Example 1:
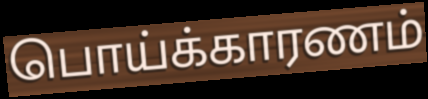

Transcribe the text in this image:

பொய்க்காரணம்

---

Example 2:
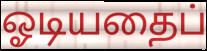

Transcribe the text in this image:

ஓடியதைப்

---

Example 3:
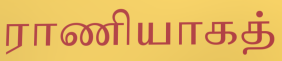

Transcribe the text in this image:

ராணியாகத்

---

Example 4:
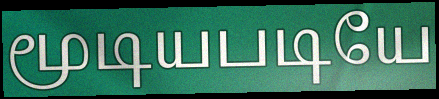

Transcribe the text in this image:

மூடியபடியே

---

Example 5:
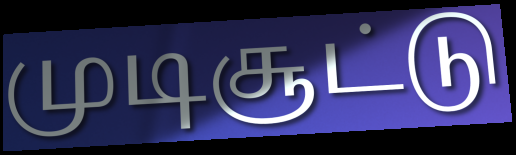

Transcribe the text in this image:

முடிசூட்டு